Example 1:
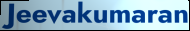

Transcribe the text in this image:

Jeevakumaran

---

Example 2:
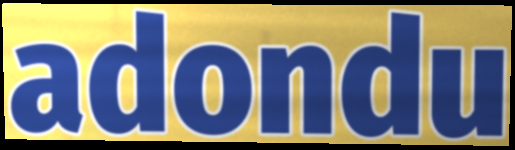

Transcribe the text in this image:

adondu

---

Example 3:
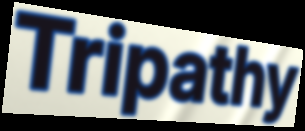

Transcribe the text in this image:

Tripathy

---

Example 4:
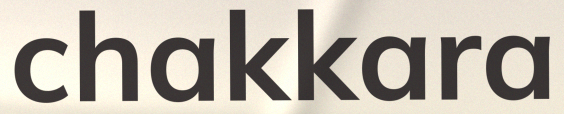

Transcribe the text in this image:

chakkara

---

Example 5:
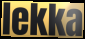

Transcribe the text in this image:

lekka